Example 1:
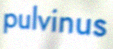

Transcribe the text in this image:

pulvinus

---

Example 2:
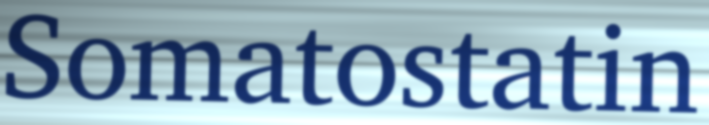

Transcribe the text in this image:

Somatostatin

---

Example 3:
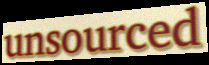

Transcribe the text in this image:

unsourced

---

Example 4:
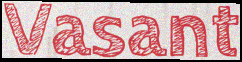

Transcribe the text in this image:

Vasant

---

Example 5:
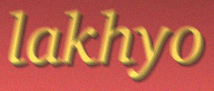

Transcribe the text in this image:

lakhyo